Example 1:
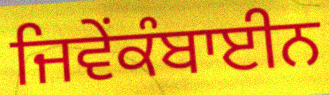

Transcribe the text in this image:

ਜਿਵੇਂਕੰਬਾਈਨ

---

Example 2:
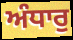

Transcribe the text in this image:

ਅੰਧਾਰੁ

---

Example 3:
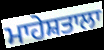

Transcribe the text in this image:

ਮਾਹੇਸ਼ਤਾਲਾ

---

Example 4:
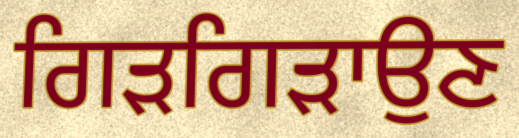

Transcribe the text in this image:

ਗਿੜਗਿੜਾਉਣ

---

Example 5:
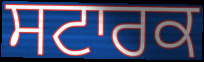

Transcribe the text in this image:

ਸਟਾਰਕ